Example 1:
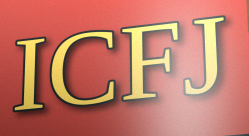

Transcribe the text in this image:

ICFJ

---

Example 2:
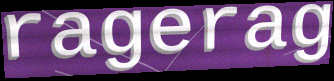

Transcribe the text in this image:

ragerag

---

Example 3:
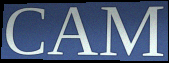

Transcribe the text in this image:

CAM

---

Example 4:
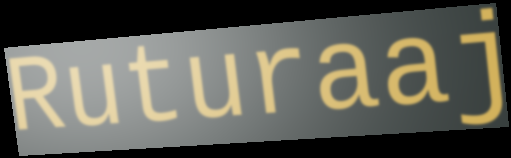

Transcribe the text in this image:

Ruturaaj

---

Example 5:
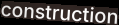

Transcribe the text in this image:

construction